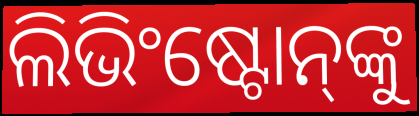
ଲିଭିଂଷ୍ଟୋନ୍‌ଙ୍କୁ